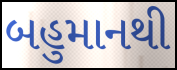
બહુમાનથી